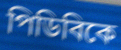
পিডিবিকে